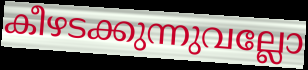
കീഴടക്കുന്നുവല്ലോ